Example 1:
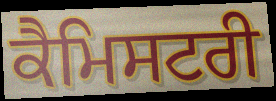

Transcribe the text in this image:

ਕੈਮਿਸਟਰੀ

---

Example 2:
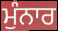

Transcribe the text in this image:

ਮੁੰਨਾਰ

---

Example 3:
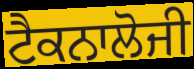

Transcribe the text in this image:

ਟੈਕਨਾਲੋਜੀ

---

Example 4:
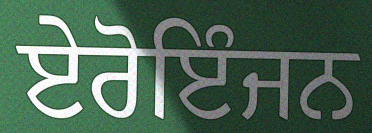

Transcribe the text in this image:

ਏਰੋਇੰਜਨ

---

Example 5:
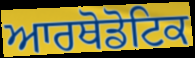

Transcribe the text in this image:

ਆਰਥੋਡੋਟਿਕ